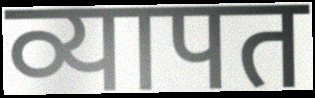
व्यापत